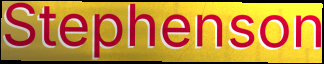
Stephenson